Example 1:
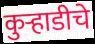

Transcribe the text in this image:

कुऱ्हाडीचे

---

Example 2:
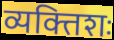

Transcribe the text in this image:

व्यक्तिशः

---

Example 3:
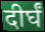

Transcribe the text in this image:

दीर्घं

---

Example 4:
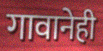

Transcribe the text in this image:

गावानेही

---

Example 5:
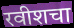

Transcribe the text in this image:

रवीशचा